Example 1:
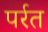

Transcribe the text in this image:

पर्रत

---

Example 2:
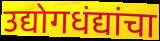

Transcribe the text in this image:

उद्योगधंद्यांचा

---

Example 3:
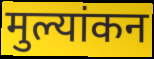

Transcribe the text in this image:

मुल्यांकन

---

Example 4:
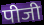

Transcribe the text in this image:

पीजी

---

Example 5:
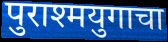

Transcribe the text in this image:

पुराश्मयुगाचा